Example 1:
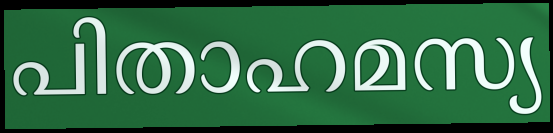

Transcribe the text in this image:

പിതാഹമസ്യ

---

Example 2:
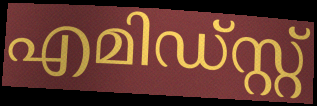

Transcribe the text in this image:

എമിഡ്സ്റ്റ്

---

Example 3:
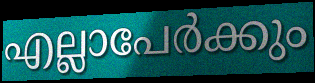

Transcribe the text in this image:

എല്ലാപേർക്കും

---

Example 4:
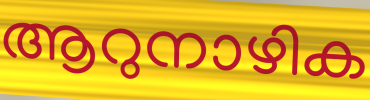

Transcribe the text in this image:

ആറുനാഴിക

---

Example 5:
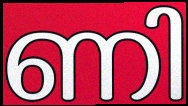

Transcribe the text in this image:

ണി